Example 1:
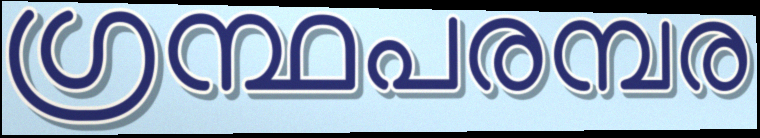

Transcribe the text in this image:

ഗ്രന്ഥപരമ്പര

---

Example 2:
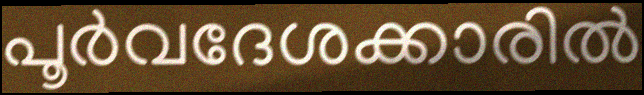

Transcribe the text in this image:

പൂർവദേശക്കാരിൽ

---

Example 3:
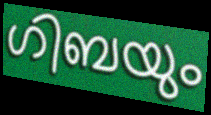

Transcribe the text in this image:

ഗിബയും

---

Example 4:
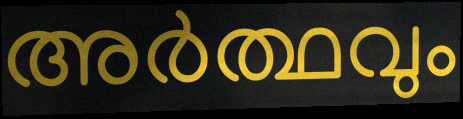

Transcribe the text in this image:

അർത്ഥവും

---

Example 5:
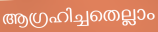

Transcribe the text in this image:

ആഗ്രഹിച്ചതെല്ലാം